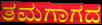
ತಮಗಾಗದ